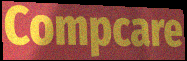
Compcare